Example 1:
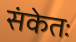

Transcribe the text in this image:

संकेतः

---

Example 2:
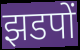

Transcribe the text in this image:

झडपों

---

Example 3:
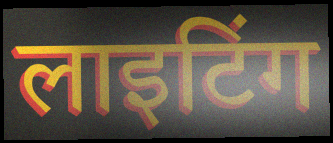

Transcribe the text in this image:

लाइटिंग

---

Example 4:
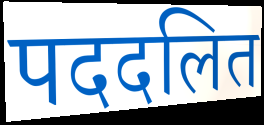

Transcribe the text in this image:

पददलित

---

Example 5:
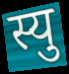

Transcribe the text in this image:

स्यु